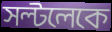
সল্টলেকে